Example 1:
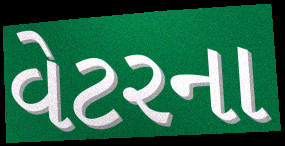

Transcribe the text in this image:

વેટરના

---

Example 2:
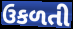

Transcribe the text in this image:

ઉકળતી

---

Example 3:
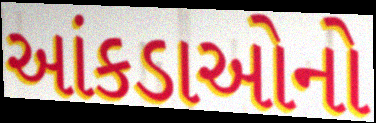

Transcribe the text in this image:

આંકડાઓનો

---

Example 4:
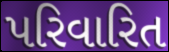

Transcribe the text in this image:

પરિવારિત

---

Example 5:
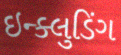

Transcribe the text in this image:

ઇન્ક્લુડિંગ